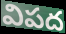
విపద